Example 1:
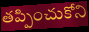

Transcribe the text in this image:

తప్పించుకోని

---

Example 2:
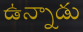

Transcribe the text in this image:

ఉన్నాడు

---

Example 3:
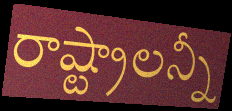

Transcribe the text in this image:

రాష్ట్రాలన్నీ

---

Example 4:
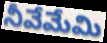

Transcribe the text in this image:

నీవేమేమి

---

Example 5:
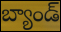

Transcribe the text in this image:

బ్యాండ్